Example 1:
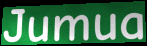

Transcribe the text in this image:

Jumua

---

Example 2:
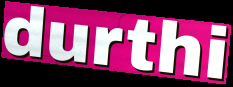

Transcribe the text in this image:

durthi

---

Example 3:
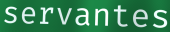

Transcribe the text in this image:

servantes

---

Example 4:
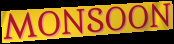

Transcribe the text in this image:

MONSOON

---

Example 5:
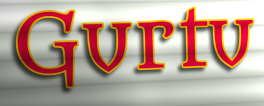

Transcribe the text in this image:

Gurtu